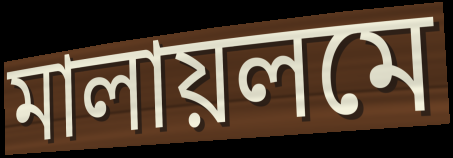
মালায়লমে